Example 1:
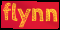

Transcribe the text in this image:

flynn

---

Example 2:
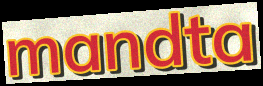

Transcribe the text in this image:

mandta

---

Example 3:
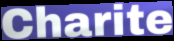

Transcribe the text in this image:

Charite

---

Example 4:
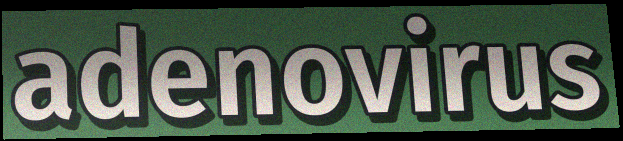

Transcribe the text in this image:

adenovirus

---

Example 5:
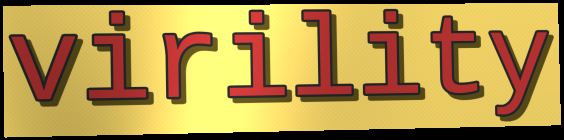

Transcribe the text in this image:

virility